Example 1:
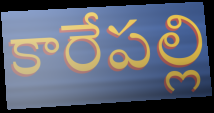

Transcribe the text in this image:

కారేపల్లి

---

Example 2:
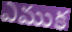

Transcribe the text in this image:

ఎముక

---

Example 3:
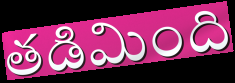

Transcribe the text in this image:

తడిమింది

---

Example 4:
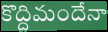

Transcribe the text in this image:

కొద్దిమందేనా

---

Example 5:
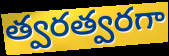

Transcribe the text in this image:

త్వరత్వరగా